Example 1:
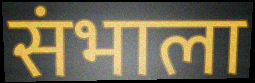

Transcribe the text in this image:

संभाला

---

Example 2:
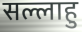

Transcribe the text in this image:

सल्लाहु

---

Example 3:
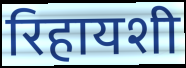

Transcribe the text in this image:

रिहायशी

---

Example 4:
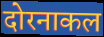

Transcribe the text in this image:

दोरनाकल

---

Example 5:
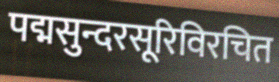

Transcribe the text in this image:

पद्मसुन्दरसूरिविरचित